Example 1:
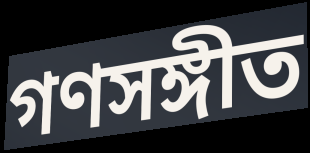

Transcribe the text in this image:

গণসঙ্গীত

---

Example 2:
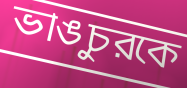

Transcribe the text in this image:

ভাঙচুরকে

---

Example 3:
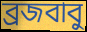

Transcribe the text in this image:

ব্রজবাবু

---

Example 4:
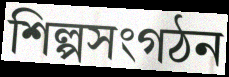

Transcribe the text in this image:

শিল্পসংগঠন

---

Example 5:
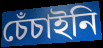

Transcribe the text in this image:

চেঁচাইনি